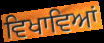
ਵਿਖਾਵਿਆਂ